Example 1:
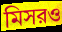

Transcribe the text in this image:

মিসরও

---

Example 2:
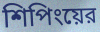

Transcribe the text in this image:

শিপিংয়ের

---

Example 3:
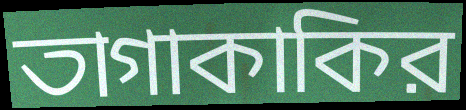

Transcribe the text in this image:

তাগাকাকির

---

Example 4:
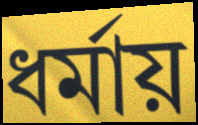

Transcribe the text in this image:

ধর্মায়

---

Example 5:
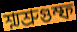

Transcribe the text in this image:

শ্মশ্রুগুম্ফ